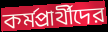
কর্মপ্রার্থীদের